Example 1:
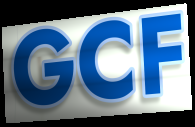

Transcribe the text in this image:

GCF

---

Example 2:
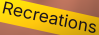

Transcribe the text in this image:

Recreations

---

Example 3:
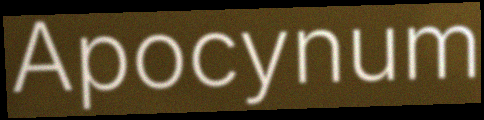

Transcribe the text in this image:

Apocynum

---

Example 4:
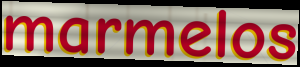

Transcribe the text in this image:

marmelos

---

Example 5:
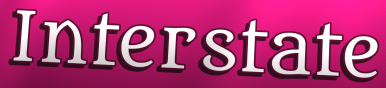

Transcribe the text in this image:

Interstate